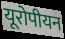
यूरोपीयन